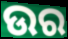
ଉର